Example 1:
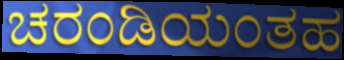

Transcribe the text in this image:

ಚರಂಡಿಯಂತಹ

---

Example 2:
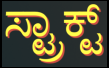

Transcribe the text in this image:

ಸ್ಟ್ರಾಕ್ಟ್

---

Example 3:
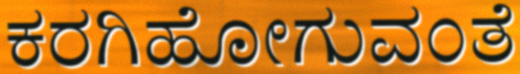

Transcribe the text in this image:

ಕರಗಿಹೋಗುವಂತೆ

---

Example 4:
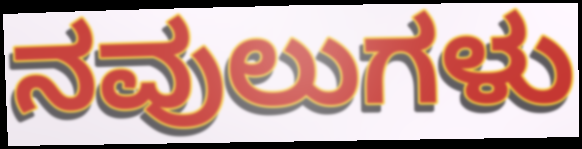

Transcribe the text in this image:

ನವುಲುಗಳು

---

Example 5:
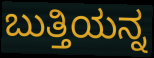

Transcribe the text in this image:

ಬುತ್ತಿಯನ್ನ